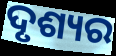
ଦୃଶ୍ୟର